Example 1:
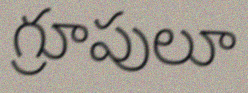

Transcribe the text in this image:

గ్రూపులూ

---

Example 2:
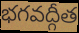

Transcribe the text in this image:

భగవద్గీత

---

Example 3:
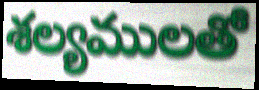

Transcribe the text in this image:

శల్యములతో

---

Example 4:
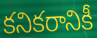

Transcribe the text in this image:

కనికరానికీ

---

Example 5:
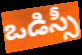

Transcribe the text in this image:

ఒడిస్సీ